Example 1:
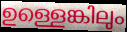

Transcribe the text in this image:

ഉള്ളെങ്കിലും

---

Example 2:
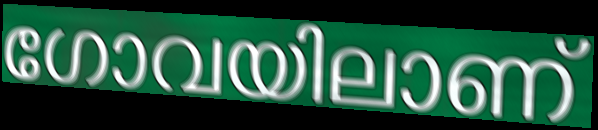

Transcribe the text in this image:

ഗോവയിലാണ്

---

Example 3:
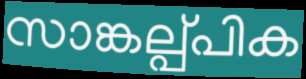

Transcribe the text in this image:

സാങ്കല്പ്പിക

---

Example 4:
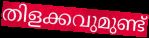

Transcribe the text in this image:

തിളക്കവുമുണ്ട്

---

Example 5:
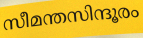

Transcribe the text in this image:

സീമന്തസിന്ദൂരം